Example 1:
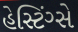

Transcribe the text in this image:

હેસ્ટિંગ્સે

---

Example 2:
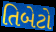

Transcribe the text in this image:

તિબેટો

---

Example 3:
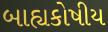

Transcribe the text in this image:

બાહ્યકોષીય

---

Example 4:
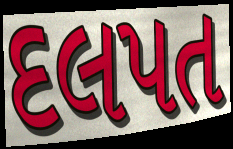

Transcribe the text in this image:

દલપત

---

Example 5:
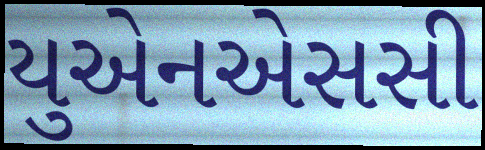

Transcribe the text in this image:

યુએનએસસી